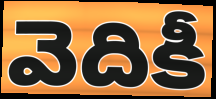
వెదికీ